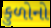
કુળોનો